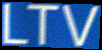
LTV